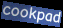
cookpad